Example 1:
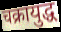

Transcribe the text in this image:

चक्रायुद्ध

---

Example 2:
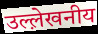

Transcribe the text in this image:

उल्ल़ेखनीय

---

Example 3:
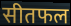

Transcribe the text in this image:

सीतफल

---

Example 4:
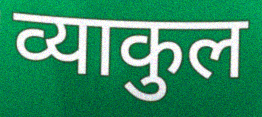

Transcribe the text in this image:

व्याकुल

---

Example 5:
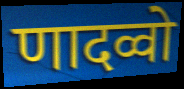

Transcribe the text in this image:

णादव्वो